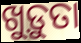
ଖୁଡ଼ୁତା